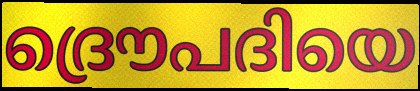
ദ്രൌപദിയെ